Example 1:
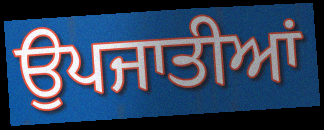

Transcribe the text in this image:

ਉਪਜਾਤੀਆਂ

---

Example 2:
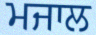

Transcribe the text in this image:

ਮਜਾਲ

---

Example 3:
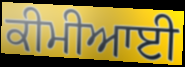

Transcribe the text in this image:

ਕੀਮੀਆਈ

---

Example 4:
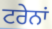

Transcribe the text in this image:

ਟਰੇਨਾਂ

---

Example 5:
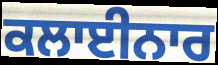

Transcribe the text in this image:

ਕਲਾਈਨਾਰ